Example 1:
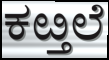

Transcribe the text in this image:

ಕೞ್ತಲೆ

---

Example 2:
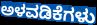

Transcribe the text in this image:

ಅಳವಡಿಕೆಗಳು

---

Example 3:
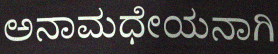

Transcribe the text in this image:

ಅನಾಮಧೇಯನಾಗಿ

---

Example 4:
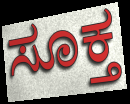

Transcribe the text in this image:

ಸೂಕ್ತ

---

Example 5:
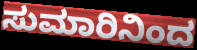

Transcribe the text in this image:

ಸುಮಾರಿನಿಂದ